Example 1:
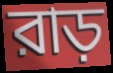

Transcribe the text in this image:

রাড়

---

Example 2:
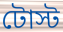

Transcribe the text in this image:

টোস্ট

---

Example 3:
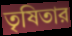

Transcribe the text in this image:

তৃষিতার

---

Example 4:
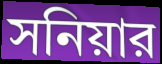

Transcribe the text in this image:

সনিয়ার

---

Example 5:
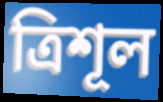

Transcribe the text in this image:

ত্রিশূল